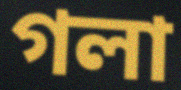
গলা